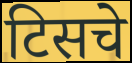
टिसचे